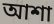
আশা